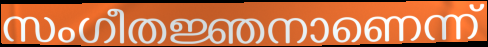
സംഗീതജ്ഞനാണെന്ന്